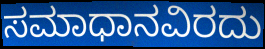
ಸಮಾಧಾನವಿರದು